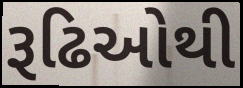
રૂઢિઓથી